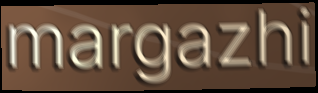
margazhi